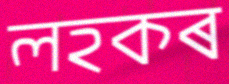
লহকৰ